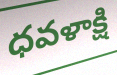
ధవళాక్షి